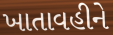
ખાતાવહીને